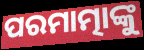
ପରମାତ୍ମାଙ୍କୁ